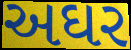
અઘર